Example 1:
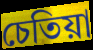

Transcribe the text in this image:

চেতিয়া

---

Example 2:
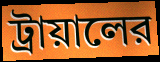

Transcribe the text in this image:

ট্রায়ালের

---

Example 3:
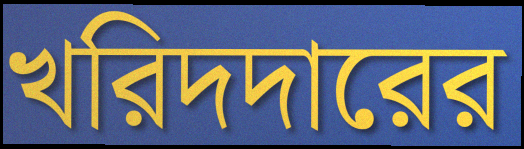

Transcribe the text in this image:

খরিদদারের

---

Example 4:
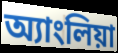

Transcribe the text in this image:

অ্যাংলিয়া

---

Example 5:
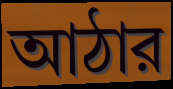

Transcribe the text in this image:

আঠার